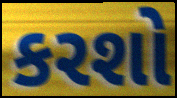
કરશો